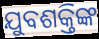
ଯୁବଶକ୍ତିଙ୍କ